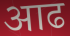
आढ